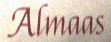
Almaas